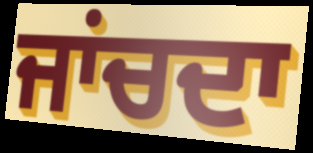
ਜਾਂਚਦਾ